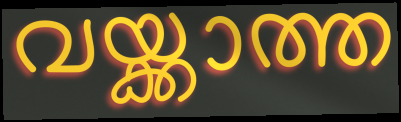
വയ്ക്കാത്ത